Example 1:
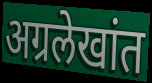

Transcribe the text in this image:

अग्रलेखांत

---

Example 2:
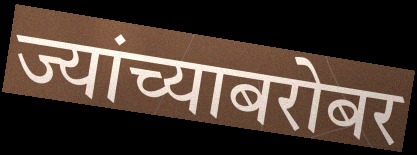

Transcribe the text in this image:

ज्यांच्याबरोबर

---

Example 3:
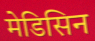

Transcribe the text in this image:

मेडिसिन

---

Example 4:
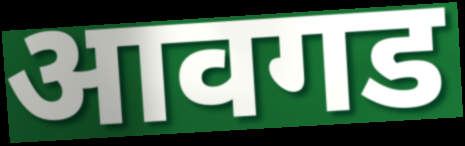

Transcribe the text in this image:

आवगड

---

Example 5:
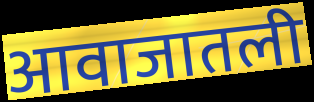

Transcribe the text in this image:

आवाजातली